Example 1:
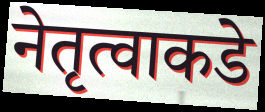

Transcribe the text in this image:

नेतृत्वाकडे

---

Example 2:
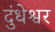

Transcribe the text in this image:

दुंधेश्वर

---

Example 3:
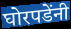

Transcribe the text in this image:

घोरपडेंनी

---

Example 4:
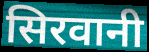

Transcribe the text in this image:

सिरवानी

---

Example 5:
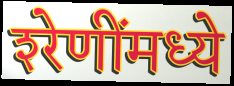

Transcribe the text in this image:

श्रेणींमध्ये